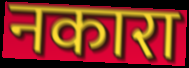
नकारा